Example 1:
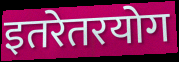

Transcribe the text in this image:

इतरेतरयोग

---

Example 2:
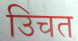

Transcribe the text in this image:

उिचत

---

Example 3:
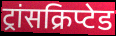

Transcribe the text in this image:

ट्रांसक्रिप्टेड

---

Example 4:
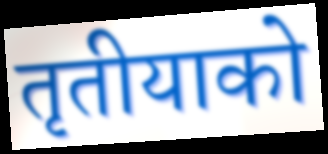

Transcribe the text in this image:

तृतीयाको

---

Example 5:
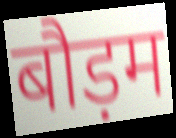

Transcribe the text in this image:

बौड़म